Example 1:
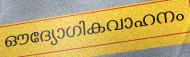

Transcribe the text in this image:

ഔദ്യോഗികവാഹനം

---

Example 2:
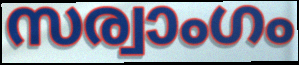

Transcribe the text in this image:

സര്വാംഗം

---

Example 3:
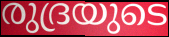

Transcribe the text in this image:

രുദ്രയുടെ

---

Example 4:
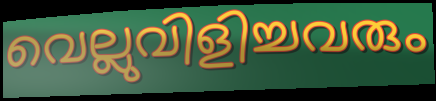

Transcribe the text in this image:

വെല്ലുവിളിച്ചവരും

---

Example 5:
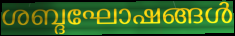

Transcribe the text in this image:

ശബ്ദഘോഷങ്ങൾ